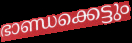
ഭാണ്ഡക്കെട്ടും